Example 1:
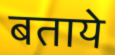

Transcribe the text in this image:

बताये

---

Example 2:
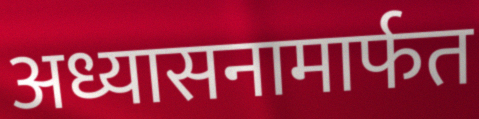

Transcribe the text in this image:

अध्यासनामार्फत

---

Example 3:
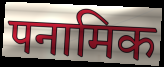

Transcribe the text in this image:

पनामिक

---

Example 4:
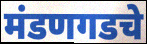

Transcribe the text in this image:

मंडणगडचे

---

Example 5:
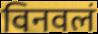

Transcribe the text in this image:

विनवलं